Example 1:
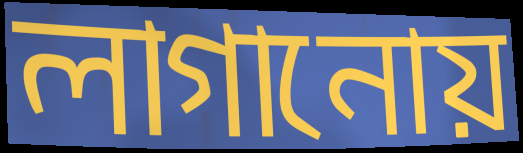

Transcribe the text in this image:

লাগানোয়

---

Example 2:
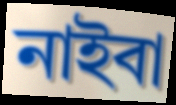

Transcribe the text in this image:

নাইবা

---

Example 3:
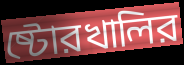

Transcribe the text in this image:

ষ্টোরখালির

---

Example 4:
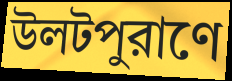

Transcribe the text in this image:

উলটপুরাণে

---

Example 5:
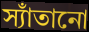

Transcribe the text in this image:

স্যাঁতানো